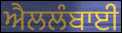
ਐਲਲੰਬਾਈ